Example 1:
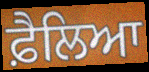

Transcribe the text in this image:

ਫ਼ੈਲਿਆ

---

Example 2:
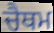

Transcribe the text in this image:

ਚੈਥਮ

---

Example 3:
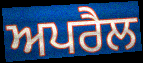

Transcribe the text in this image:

ਅਪਰੈਲ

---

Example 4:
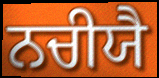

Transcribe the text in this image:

ਨਚੀਯੈ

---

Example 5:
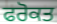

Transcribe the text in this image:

ਫਰੋਕਤ